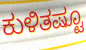
ಕುಳಿತಷ್ಟೂ